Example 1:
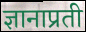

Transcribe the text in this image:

ज्ञानाप्रती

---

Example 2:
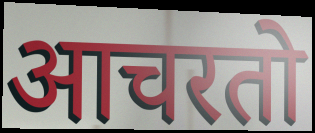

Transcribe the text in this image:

आचरतो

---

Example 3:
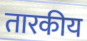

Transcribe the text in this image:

तारकीय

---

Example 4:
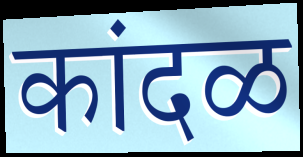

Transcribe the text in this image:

कांदळ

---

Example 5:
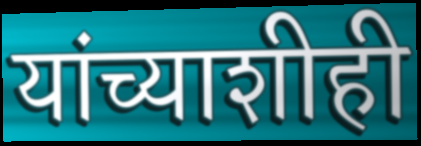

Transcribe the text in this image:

यांच्याशीही